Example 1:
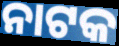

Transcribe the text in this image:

ନାଟକ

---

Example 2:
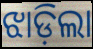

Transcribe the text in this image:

ଝାଡ଼ିଲା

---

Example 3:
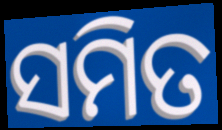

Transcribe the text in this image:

ସମିତ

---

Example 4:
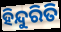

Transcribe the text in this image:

ହିନ୍ଦୁରିତି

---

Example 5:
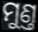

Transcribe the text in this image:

ମୁଣ୍ତ